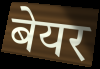
बेयर